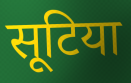
सूटिया